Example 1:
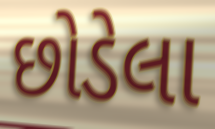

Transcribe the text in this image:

છોડેલા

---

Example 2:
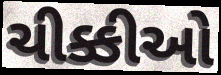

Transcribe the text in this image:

ચીક્કીઓ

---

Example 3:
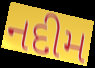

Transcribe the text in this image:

નદીમ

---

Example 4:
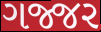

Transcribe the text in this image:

ગજ્જર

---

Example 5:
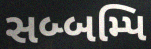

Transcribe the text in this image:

સબ્બમ્પિ